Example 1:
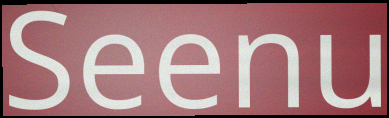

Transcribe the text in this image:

Seenu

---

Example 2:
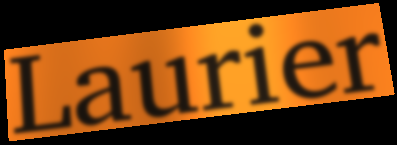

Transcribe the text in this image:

Laurier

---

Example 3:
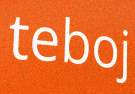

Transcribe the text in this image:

teboj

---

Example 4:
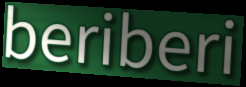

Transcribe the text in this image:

beriberi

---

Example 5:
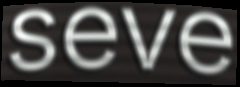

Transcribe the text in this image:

seve